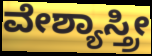
ವೇಶ್ಯಾಸ್ತ್ರೀ